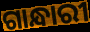
ଗାନ୍ଧାରୀ